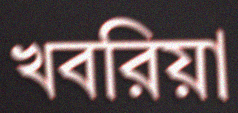
খবরিয়া